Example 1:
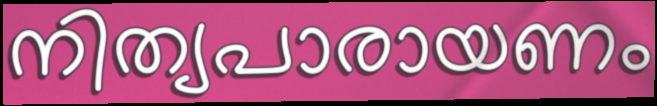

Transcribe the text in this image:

നിത്യപാരായണം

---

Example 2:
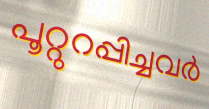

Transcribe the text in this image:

പൂറ്റുറപ്പിച്ചവർ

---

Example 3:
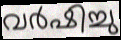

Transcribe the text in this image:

വർഷിച്ചു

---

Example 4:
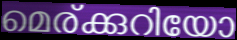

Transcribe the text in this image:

മെര്ക്കുറിയോ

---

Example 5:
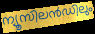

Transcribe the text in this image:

ന്യൂസിലൻഡിലും